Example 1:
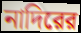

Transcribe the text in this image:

নাদিরের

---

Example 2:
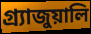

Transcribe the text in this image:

গ্র্যাজুয়ালি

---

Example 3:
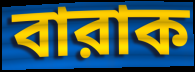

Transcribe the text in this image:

বারাক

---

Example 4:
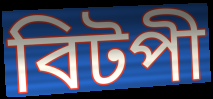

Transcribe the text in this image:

বিটপী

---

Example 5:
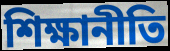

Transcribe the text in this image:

শিক্ষানীতি